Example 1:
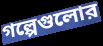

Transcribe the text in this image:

গল্পেগুলোর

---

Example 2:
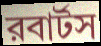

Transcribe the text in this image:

রবার্টস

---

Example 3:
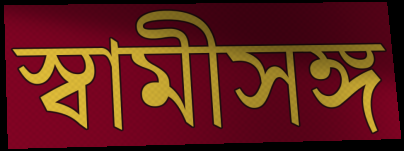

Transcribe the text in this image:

স্বামীসঙ্গ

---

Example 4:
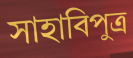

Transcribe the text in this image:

সাহাবিপুত্র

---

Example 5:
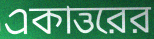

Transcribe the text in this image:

একাত্তরের